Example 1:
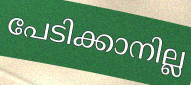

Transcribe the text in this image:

പേടിക്കാനില്ല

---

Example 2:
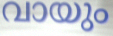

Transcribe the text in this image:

വായും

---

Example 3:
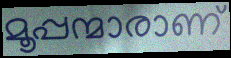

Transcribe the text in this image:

മൂപ്പന്മാരാണ്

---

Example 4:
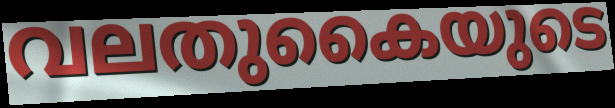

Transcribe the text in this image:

വലതുകൈയുടെ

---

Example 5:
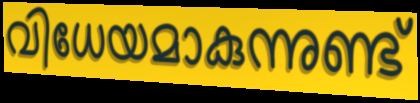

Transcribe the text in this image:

വിധേയമാകുന്നുണ്ട്